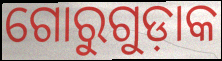
ଗୋରୁଗୁଡ଼ାକ